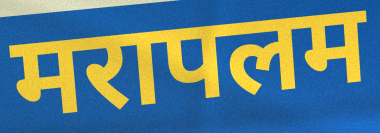
मरापलम